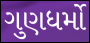
ગુણધર્મો